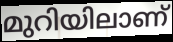
മുറിയിലാണ്